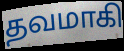
தவமாகி